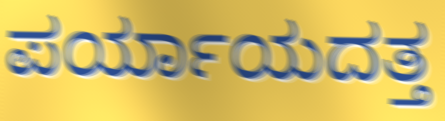
ಪರ್ಯಾಯದತ್ತ